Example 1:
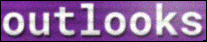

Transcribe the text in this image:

outlooks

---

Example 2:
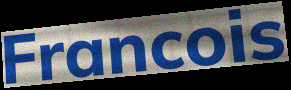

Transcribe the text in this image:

Francois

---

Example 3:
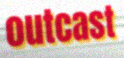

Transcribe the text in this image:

outcast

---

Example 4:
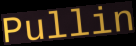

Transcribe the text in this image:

Pullin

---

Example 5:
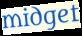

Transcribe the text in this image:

midget